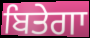
ਬਿਤੇਗਾ